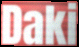
Daki